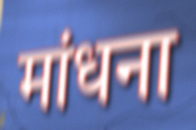
मांधना